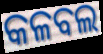
କଳବଲ